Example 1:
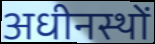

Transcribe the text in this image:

अधीनस्थों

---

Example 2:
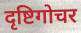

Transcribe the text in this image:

दृष्टिगोचर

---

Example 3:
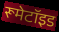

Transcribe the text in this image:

रूमेटॉइड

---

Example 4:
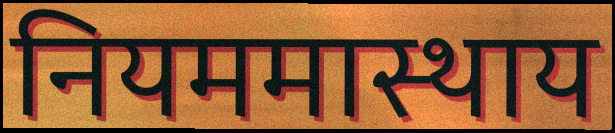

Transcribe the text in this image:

नियममास्थाय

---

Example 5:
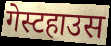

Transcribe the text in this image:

गेस्टहाउस